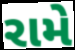
રામે